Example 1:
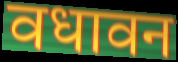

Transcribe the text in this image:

वधावन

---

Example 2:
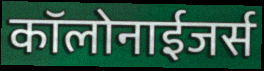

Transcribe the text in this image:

कॉलोनाईजर्स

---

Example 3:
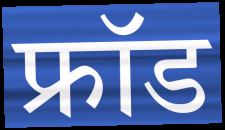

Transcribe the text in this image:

फ्रॉड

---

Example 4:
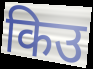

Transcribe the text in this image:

किउ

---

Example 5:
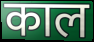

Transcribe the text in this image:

काल